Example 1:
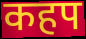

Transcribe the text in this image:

कहप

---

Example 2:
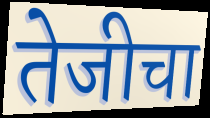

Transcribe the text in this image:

तेजीचा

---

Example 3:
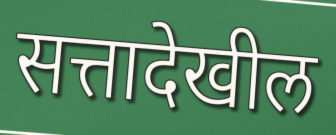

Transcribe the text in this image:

सत्तादेखील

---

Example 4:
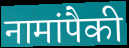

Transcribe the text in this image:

नामांपैकी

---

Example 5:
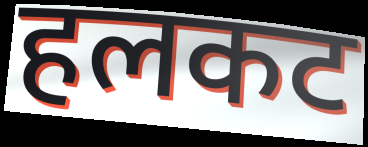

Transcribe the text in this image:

हलकट